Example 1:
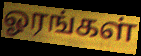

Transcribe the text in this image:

ஓரங்கள்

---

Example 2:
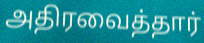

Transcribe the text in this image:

அதிரவைத்தார்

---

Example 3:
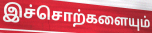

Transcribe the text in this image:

இச்சொற்களையும்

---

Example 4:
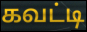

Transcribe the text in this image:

கவட்டி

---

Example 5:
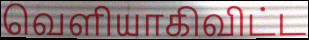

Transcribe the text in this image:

வெளியாகிவிட்ட